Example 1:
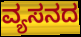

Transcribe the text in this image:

ವ್ಯಸನದ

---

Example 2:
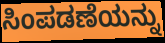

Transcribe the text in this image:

ಸಿಂಪಡಣೆಯನ್ನು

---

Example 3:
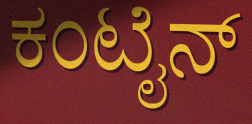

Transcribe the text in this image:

ಕಂಟೈನ್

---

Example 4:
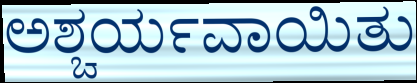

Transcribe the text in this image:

ಅಶ್ಚರ್ಯವಾಯಿತು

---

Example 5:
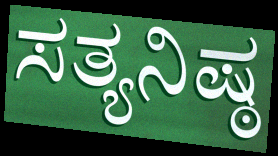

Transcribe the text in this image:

ಸತ್ಯನಿಷ್ಠ